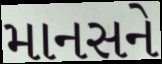
માનસને